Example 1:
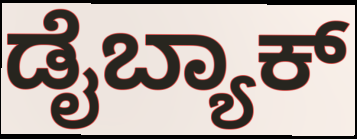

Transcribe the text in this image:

ಡೈಬ್ಯಾಕ್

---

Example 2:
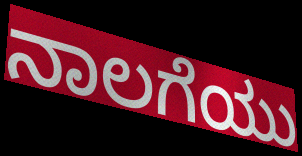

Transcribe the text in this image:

ನಾಲಗೆಯು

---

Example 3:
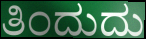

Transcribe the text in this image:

ತಿಂದುದು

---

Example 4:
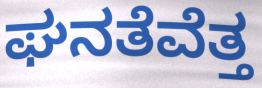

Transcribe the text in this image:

ಘನತೆವೆತ್ತ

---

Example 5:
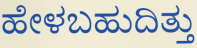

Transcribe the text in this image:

ಹೇಳಬಹುದಿತ್ತು